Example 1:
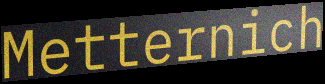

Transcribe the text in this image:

Metternich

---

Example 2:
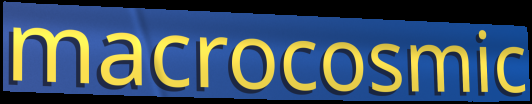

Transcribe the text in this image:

macrocosmic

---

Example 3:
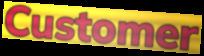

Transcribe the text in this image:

Customer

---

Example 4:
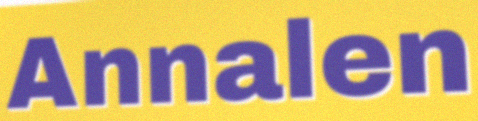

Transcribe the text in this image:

Annalen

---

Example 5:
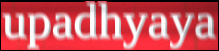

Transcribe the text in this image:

upadhyaya